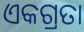
ଏକଗ୍ରତା